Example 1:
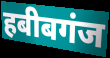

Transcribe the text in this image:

हबीबगंज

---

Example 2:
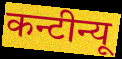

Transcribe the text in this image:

कन्टीन्यू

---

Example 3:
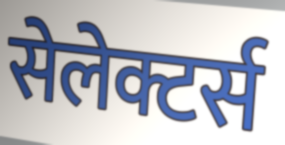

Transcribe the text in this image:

सेलेक्टर्स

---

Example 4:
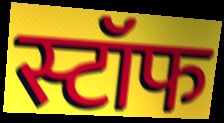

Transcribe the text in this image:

स्‍टॉफ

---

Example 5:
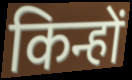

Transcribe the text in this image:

किन्हों